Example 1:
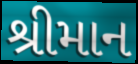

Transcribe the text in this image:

શ્રીમાન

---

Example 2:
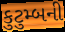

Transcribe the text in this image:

કુટુમ્બની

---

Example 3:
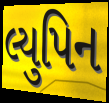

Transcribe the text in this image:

લ્યુપિન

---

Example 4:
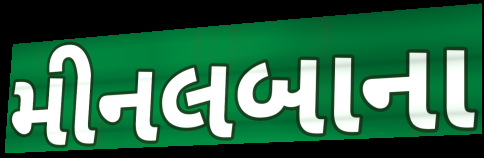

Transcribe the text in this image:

મીનલબાના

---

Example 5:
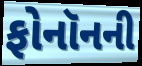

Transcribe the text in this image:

ફોનૉનની